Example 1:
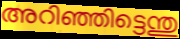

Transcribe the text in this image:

അറിഞ്ഞിട്ടെന്തു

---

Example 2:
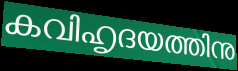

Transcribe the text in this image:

കവിഹൃദയത്തിനു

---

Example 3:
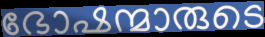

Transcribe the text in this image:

ഭോഷന്മാരുടെ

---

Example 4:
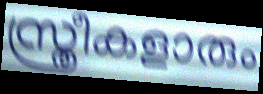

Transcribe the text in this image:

സ്ത്രീകളാരും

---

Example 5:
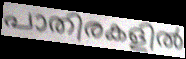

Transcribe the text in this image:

പാതിരകളിൽ